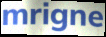
mrigne